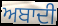
ਅਬਾਦੀ